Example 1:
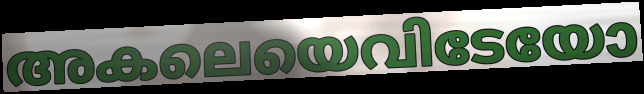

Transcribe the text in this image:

അകലെയെവിടേയോ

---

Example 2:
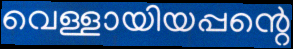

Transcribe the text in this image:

വെള്ളായിയപ്പന്റെ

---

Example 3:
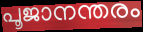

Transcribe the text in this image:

പൂജാനന്തരം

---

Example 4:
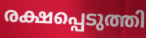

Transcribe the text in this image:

രക്ഷപ്പെടുത്തി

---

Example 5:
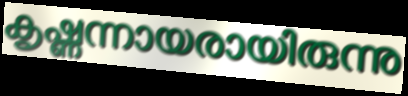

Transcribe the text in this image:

കൃഷ്ണന്നായരായിരുന്നു